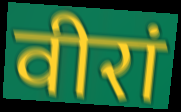
वीरां